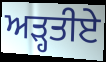
ਅੜ੍ਹਤੀਏ